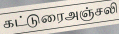
கட்டுரைஅஞ்சலி